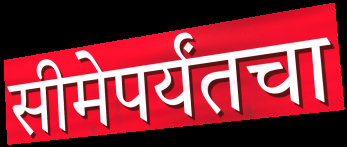
सीमेपर्यंतचा